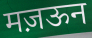
मज़ऊन